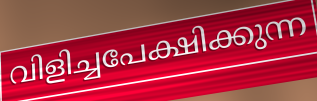
വിളിച്ചപേക്ഷിക്കുന്ന